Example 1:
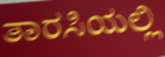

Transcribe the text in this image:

ತಾರಸಿಯಲ್ಲಿ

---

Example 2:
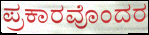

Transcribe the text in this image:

ಪ್ರಕಾರವೊಂದರ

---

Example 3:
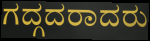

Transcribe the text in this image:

ಗದ್ಗದರಾದರು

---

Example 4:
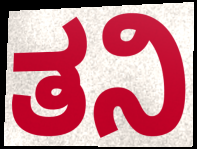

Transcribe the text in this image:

ತನಿ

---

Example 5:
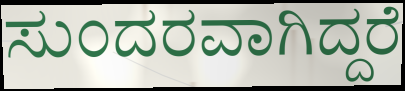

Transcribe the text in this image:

ಸುಂದರವಾಗಿದ್ದರೆ